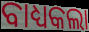
ବାଧ୍ୟକଲା